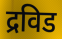
द्रविड